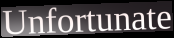
Unfortunate